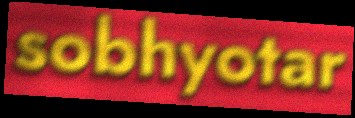
sobhyotar